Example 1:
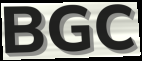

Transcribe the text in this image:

BGC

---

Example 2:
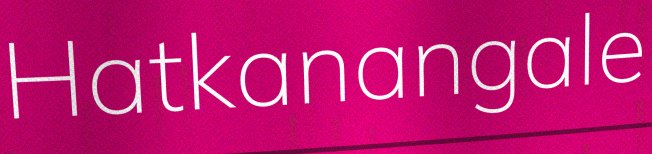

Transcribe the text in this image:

Hatkanangale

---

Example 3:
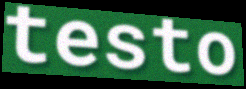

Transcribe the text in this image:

testo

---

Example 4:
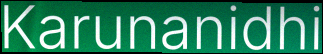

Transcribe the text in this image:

Karunanidhi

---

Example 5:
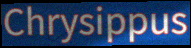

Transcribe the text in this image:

Chrysippus